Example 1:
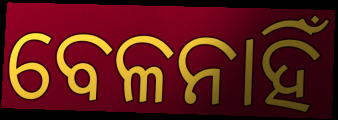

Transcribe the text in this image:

ବେଳନାହିଁ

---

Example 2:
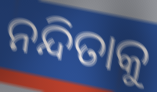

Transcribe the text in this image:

ନନ୍ଦିତାକୁ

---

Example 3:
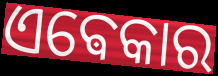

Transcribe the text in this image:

ଏଵେକାର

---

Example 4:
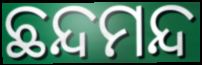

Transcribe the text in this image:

ଛନ୍ଦମନ୍ଦ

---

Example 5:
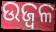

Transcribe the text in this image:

ଉଜ୍ବଳ